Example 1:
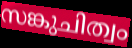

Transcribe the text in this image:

സങ്കുചിത്വം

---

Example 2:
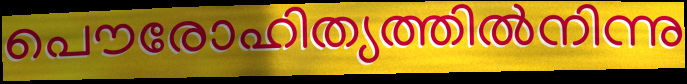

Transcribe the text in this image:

പൌരോഹിത്യത്തിൽനിന്നു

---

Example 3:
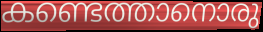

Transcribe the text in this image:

കണ്ടെത്താനൊരു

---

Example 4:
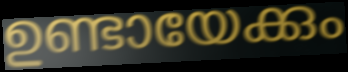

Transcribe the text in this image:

ഉണ്ടായേക്കും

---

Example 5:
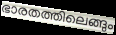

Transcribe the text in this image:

ഭാരതത്തിലെങ്ങും